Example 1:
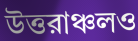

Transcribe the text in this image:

উত্তরাঞ্চলও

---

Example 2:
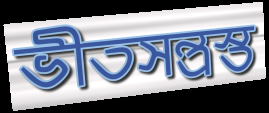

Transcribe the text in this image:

ভীতসন্ত্রস্ত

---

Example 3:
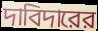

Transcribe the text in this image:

দাবিদারের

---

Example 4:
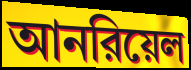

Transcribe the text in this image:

আনরিয়েল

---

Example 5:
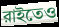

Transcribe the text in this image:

রাইতেও